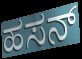
ಹಸನ್